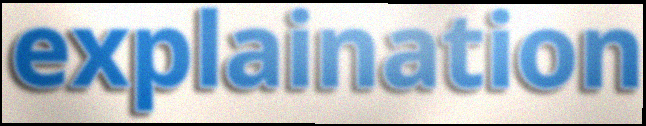
explaination